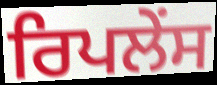
ਰਿਪਲੇਂਸ